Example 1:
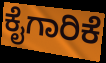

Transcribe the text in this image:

ಕೈಗಾರಿಕೆ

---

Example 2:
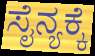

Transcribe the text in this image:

ಸೈನ್ಯಕ್ಕೆ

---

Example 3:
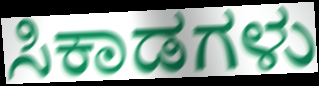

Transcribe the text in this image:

ಸಿಕಾಡಗಳು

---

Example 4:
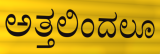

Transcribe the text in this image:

ಅತ್ತಲಿಂದಲೂ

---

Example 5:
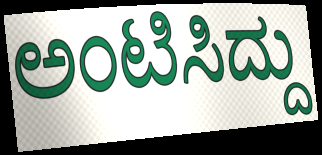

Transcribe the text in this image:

ಅಂಟಿಸಿದ್ದು